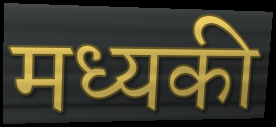
मध्यकी